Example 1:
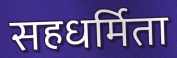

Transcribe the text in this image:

सहधर्मिता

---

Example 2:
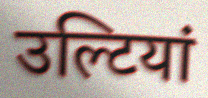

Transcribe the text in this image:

उल्टियां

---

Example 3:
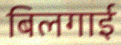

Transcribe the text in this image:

बिलगाई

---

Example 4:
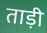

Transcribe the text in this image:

ताड़ी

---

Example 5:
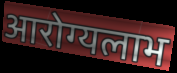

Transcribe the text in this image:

आरोग्यलाभ